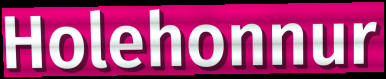
Holehonnur